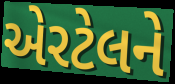
એરટેલને